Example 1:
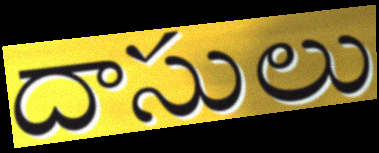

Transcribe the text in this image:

దాసులు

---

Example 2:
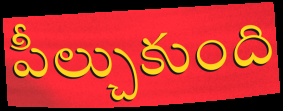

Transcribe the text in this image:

పీల్చుకుంది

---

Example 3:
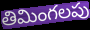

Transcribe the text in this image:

తిమింగలపు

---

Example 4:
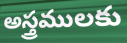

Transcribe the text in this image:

అస్త్రములకు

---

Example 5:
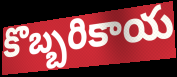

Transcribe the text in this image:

కొబ్బరికాయ